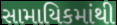
સામાયિકમાંથી